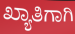
ಖ್ಯಾತಿಗಾಗಿ